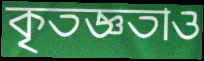
কৃতজ্ঞতাও